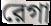
রেগা